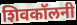
शिवकॉलनी